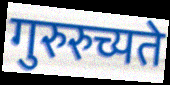
गुरुरुच्यते